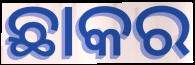
ଛାକର